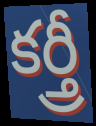
కర్త్రీ